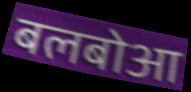
बलबोआ